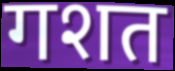
गशत